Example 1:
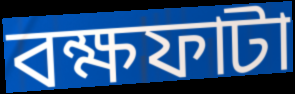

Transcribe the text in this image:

বক্ষফাটা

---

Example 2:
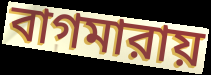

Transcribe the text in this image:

বাগমারায়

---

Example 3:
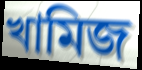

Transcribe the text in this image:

খামিজ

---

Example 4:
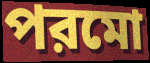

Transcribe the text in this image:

পরমো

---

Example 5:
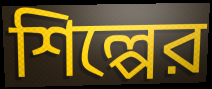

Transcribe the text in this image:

শিল্পের